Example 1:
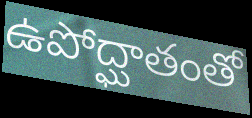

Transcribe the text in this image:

ఉపోద్ఘాతంతో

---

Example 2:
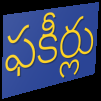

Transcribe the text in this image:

ఫకీర్లు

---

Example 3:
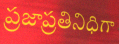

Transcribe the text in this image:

ప్రజాప్రతినిధిగా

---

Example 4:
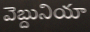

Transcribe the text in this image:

వెబ్దునియా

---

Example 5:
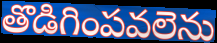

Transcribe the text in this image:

తొడిగింపవలెను